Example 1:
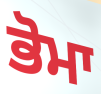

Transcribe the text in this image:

ਭੋਮਾ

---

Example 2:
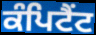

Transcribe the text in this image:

ਕੰਪਿਟੈਂਟ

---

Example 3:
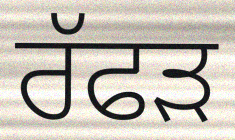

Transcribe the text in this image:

ਰੱਫੜ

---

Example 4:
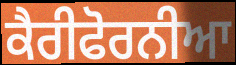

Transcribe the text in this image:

ਕੈਰੀਫੋਰਨੀਆ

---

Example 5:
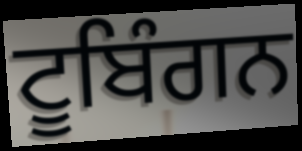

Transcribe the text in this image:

ਟੂਬਿੰਗਨ